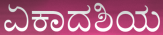
ಏಕಾದಶಿಯ